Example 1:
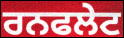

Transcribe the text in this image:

ਰਨਫਲੇਟ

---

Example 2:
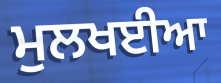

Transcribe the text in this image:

ਮੁਲਖਈਆ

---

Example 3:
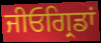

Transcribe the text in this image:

ਜੀਓਗ੍ਰਿਡਾਂ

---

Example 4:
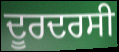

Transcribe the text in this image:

ਦੂਰਦਰਸੀ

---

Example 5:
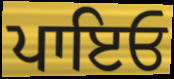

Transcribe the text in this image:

ਪਾਇਓ